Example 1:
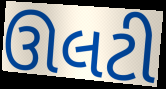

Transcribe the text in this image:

ઊલટી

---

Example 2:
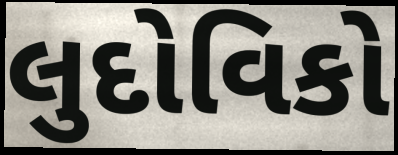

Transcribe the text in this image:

લુદોવિકો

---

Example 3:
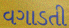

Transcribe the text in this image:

વગાડતી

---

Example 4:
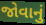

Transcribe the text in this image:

જોવાનું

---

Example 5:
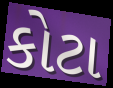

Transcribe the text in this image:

કોટા